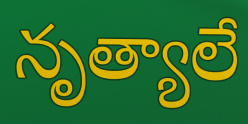
నృత్యాలే